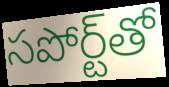
సపోర్ట్‌తో